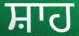
ਸ਼ਾਹ